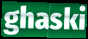
ghaski